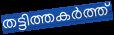
തട്ടിത്തകർത്ത്